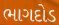
ભાગદોડ